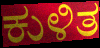
ಕುಳಿತ